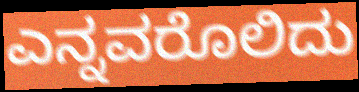
ಎನ್ನವರೊಲಿದು